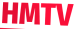
HMTV